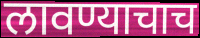
लावण्याचाच